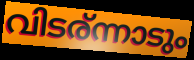
വിടര്ന്നാടും